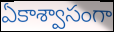
ఏకాశ్వాసంగా